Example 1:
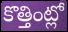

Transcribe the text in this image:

కొత్తింట్లో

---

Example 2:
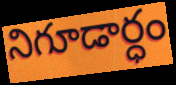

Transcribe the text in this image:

నిగూడార్ధం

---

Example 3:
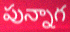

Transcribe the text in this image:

పున్నాగ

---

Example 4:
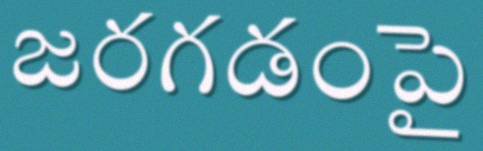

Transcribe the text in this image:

జరగడంపై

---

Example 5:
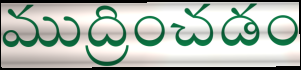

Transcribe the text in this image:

ముద్రించడం